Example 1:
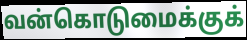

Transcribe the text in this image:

வன்கொடுமைக்குக்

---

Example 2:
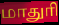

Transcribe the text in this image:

மாதுரி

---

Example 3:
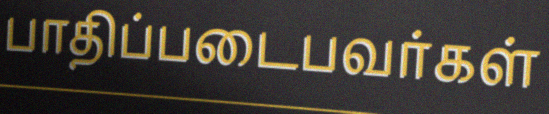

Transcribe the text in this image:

பாதிப்படைபவர்கள்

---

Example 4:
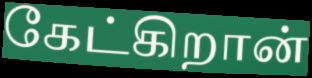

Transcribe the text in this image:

கேட்கிறான்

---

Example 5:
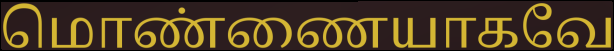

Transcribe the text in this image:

மொண்ணையாகவே